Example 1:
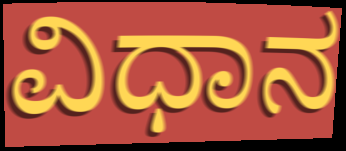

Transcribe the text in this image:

ವಿಧಾನ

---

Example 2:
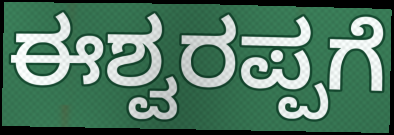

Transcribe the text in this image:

ಈಶ್ವರಪ್ಪಗೆ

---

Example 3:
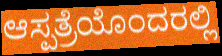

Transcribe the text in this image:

ಆಸ್ಪತ್ರೆಯೊಂದರಲ್ಲಿ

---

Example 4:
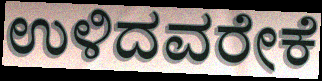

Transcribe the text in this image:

ಉಳಿದವರೇಕೆ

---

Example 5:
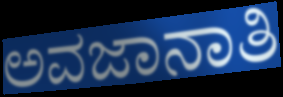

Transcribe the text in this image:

ಅವಜಾನಾತಿ